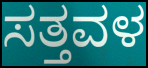
ಸತ್ತವಳ